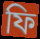
ফি